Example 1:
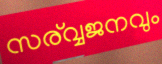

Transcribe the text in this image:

സര്വ്വജനവും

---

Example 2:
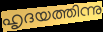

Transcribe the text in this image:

ഹൃദയത്തിന്നു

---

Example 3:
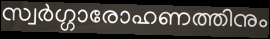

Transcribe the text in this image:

സ്വർഗ്ഗാരോഹണത്തിനും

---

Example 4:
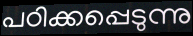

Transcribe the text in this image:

പഠിക്കപ്പെടുന്നു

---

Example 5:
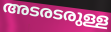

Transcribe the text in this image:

അടരടരുള്ള